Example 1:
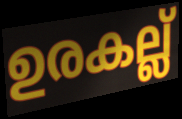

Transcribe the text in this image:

ഉരകല്ല്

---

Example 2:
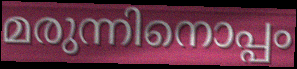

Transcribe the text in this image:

മരുന്നിനൊപ്പം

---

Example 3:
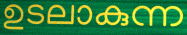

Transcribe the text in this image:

ഉടലാകുന്ന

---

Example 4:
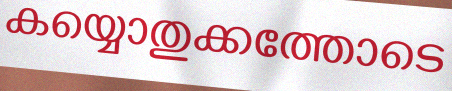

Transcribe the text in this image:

കയ്യൊതുക്കത്തോടെ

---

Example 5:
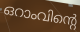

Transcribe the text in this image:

ഒറാംവിന്റെ